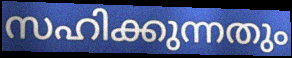
സഹിക്കുന്നതും